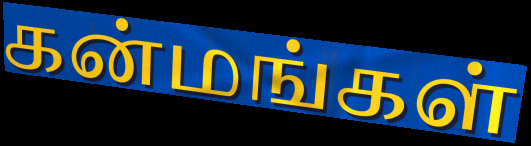
கன்மங்கள்